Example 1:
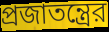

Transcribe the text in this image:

প্রজাতন্ত্রের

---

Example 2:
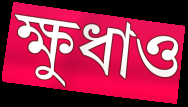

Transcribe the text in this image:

ক্ষুধাও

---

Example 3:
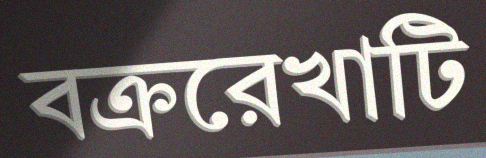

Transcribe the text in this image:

বক্ররেখাটি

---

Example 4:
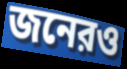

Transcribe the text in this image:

জনেরও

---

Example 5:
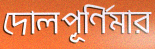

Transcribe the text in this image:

দোলপূর্ণিমার